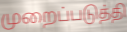
முறைப்படுத்தி